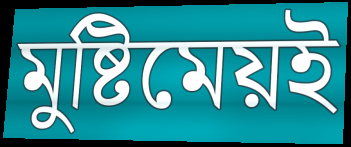
মুষ্টিমেয়ই